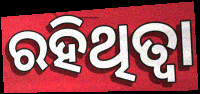
ରହିଥିତ୍ବା